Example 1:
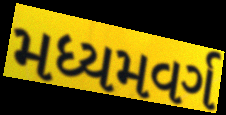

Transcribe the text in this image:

મધ્યમવર્ગ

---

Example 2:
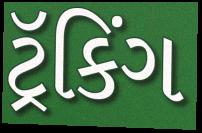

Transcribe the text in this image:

ટ્રૅકિંગ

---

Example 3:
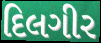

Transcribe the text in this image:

દિલગીર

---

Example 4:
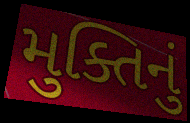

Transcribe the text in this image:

મુક્તિનું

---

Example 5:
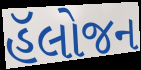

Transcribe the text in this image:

હૅલોજન